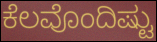
ಕೆಲವೊಂದಿಷ್ಟು